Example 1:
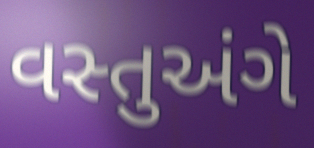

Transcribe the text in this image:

વસ્તુઅંગે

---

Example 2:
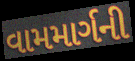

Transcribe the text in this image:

વામમાર્ગની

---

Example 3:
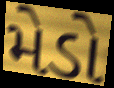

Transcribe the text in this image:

મેડો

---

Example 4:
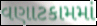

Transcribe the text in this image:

વણાટકામમાં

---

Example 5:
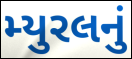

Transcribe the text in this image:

મ્યુરલનું